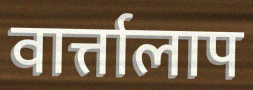
वार्त्तालाप